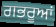
ਗਭਰੂਆਂ